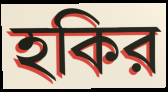
হকির